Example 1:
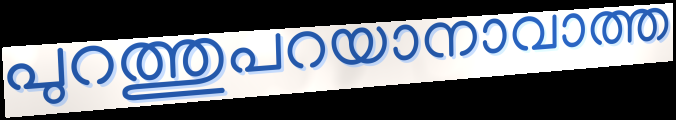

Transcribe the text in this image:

പുറത്തുപറയാനാവാത്ത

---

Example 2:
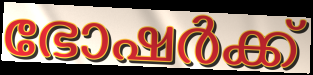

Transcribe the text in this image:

ഭോഷർക്ക്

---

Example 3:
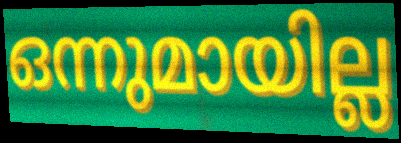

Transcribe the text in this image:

ഒന്നുമായില്ല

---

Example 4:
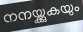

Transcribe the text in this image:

നനയ്ക്കുകയും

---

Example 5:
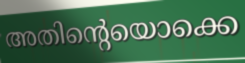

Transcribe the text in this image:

അതിന്റെയൊക്കെ